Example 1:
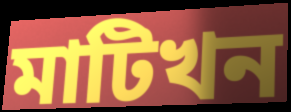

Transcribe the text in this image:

মাটিখন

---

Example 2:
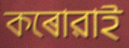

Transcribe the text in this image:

কৰোৱাই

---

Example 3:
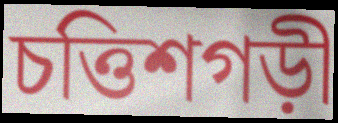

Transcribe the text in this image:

চত্তিশগড়ী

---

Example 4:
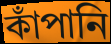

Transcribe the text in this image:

কাঁপানি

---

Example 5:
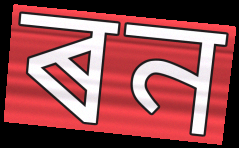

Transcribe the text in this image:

ৰন